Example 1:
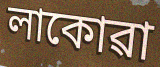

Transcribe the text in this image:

লাকোৱা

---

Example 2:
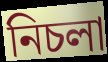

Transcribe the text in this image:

নিচলা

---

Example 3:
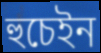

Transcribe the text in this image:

হুচেইন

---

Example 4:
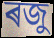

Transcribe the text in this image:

ৰজু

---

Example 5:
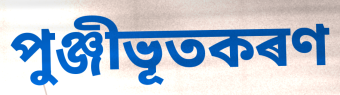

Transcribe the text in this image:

পুঞ্জীভূতকৰণ